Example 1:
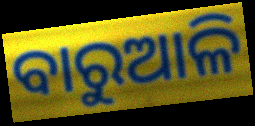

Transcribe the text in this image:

ବାରୁଆଳି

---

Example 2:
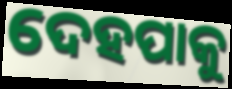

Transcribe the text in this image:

ଦେହପାକୁ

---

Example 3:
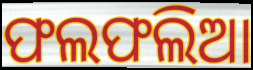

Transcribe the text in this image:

ଫଲଫଲିଆ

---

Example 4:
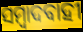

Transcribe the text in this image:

ସମ୍ବାଦବାହୀ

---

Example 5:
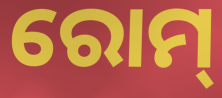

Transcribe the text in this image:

ରୋମ୍